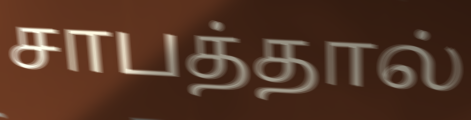
சாபத்தால்